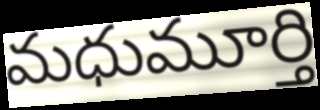
మధుమూర్తి